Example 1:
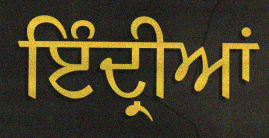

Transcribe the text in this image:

ਇੰਦ੍ਰੀਆਂ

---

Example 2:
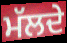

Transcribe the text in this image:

ਮੱਲਦੇ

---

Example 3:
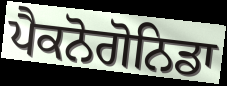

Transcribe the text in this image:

ਪੈਕਨੋਗੋਨਿਡਾ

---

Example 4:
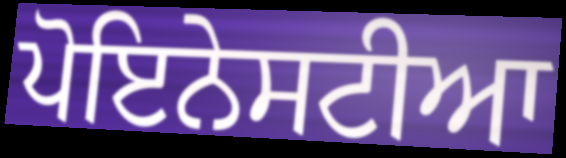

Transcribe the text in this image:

ਪੋਇਨੇਸਟੀਆ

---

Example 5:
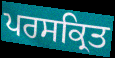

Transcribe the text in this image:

ਪਰਸਕ੍ਰਿਤ